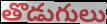
తొడుగులు